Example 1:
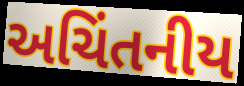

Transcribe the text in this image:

અચિંતનીય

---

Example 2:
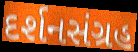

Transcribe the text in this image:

દર્શનસંગ્રહ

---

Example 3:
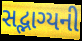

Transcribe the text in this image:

સદ્ભાગ્યની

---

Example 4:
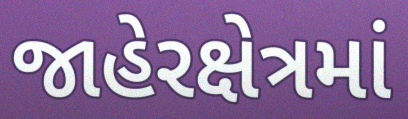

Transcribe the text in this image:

જાહેરક્ષેત્રમાં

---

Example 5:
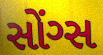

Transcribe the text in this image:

સોંગ્સ